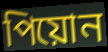
পিয়োন